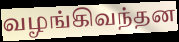
வழங்கிவந்தன